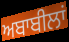
ਅਬਾਬੀਲਾਂ